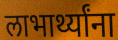
लाभार्थ्यांना